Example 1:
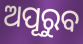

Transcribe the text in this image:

ଅପୂରୁବ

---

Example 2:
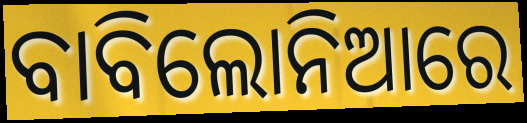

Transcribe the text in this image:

ବାବିଲୋନିଆରେ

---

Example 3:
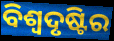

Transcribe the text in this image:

ବିଶ୍ୱଦୃଷ୍ଟିର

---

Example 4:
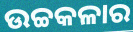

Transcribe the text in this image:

ଉଚ୍ଚକଳାର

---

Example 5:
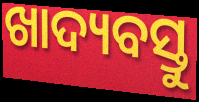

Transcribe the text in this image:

ଖାଦ୍ୟବସ୍ତୁ